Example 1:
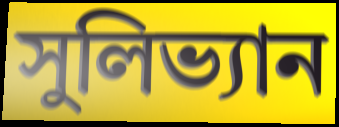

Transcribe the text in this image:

সুলিভ্যান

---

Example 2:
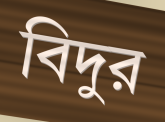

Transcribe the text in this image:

বিদুর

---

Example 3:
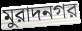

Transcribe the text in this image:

মুরাদনগর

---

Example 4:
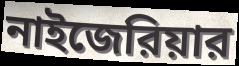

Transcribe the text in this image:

নাইজেরিয়ার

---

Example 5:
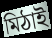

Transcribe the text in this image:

মিঠাই